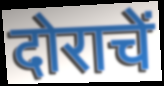
दोराचें